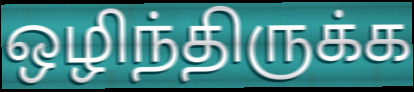
ஒழிந்திருக்க